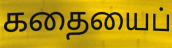
கதையைப்